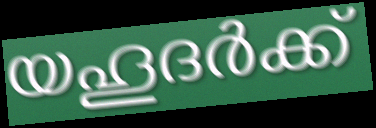
യഹൂദർക്ക്